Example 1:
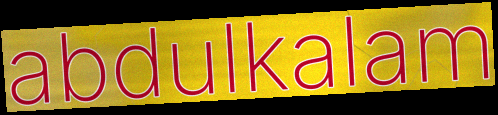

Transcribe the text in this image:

abdulkalam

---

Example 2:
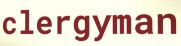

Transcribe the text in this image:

clergyman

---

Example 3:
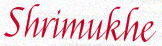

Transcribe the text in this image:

Shrimukhe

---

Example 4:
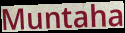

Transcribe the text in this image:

Muntaha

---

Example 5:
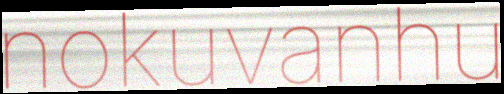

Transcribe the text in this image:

nokuvanhu